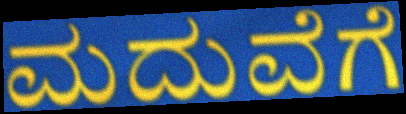
ಮದುವೆಗೆ